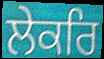
ਲੇਕਰਿ